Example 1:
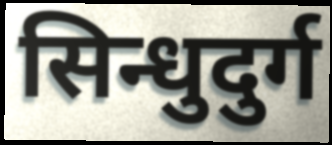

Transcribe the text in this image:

सिन्धुदुर्ग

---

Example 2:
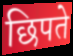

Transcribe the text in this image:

छिपते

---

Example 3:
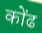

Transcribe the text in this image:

कोंढ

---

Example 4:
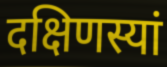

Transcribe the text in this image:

दक्षिणस्यां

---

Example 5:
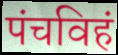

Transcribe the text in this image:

पंचविहं